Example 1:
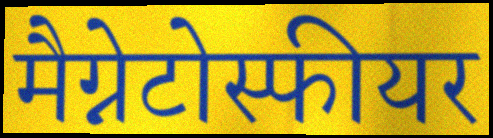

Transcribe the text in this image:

मैग्नेटोस्फीयर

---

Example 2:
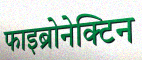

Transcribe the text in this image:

फाइब्रोनेक्टिन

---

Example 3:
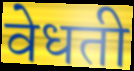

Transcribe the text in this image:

वेधती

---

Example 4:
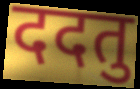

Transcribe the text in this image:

ददतु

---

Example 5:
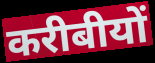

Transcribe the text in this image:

करीबीयों